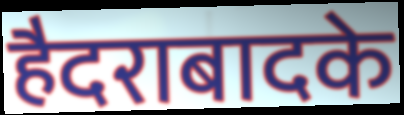
हैदराबादके